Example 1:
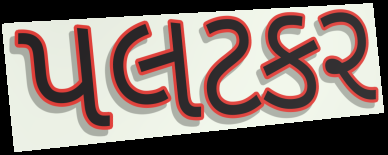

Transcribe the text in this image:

પલટકર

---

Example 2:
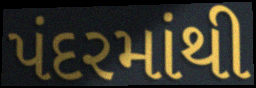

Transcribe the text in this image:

પંદરમાંથી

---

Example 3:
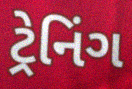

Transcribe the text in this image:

ટ્રેનિંગ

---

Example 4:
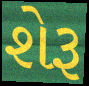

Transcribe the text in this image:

શેરૂ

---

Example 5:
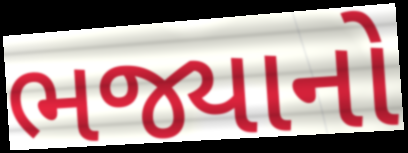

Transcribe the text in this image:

ભજ્યાનો